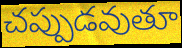
చప్పుడవుతూ